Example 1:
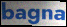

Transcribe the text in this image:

bagna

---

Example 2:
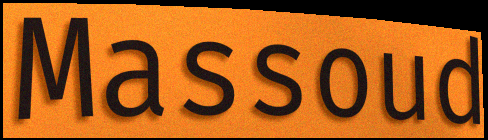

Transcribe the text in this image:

Massoud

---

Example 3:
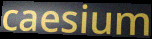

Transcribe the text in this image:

caesium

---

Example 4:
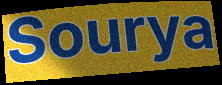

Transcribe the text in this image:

Sourya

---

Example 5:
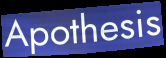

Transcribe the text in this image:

Apothesis